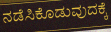
ನಡೆಸಿಕೊಡುವುದಕ್ಕೆ